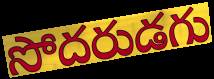
సోదరుడగు